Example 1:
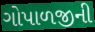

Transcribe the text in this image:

ગોપાળજીની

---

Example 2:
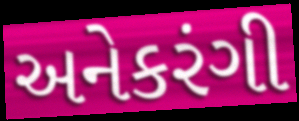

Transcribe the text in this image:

અનેકરંગી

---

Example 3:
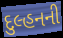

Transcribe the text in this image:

દુલ્હનની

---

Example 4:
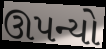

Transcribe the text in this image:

ઊપન્યો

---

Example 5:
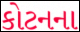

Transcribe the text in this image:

કોટનના